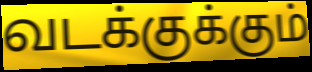
வடக்குக்கும்